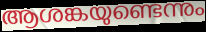
ആശങ്കയുണ്ടെന്നും